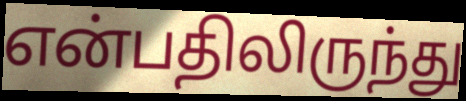
என்பதிலிருந்து